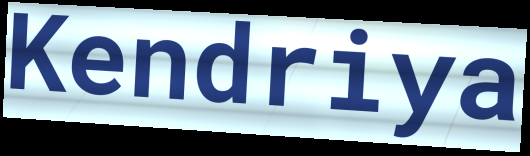
Kendriya